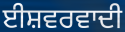
ਈਸ਼ਵਰਵਾਦੀ